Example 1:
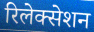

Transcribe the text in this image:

रिलेक्सेशन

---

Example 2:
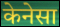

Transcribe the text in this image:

केनेसा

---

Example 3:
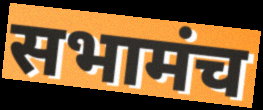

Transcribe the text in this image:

सभामंच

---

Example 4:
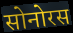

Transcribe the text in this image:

सोनोरस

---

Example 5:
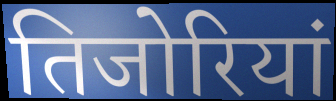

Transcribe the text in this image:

तिजोरियां